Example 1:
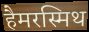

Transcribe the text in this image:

हैमरस्मिथ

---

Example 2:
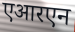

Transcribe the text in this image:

एआरएन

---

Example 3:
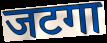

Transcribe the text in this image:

जटगा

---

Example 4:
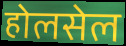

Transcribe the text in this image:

होलसेल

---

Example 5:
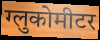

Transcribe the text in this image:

ग्लुकोमीटर